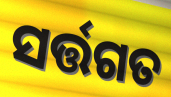
ସର୍ତ୍ତଗତ